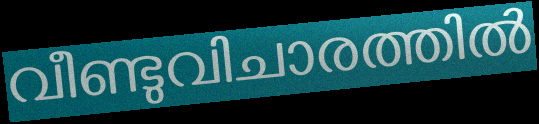
വീണ്ടുവിചാരത്തിൽ